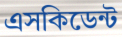
এসকিডেন্ট